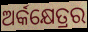
ଅର୍କକ୍ଷେତ୍ରର